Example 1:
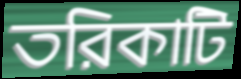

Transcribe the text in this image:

তরিকাটি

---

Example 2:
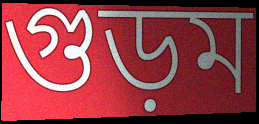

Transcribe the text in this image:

গুড়ম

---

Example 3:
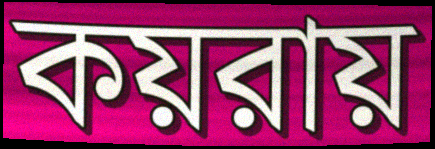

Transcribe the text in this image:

কয়রায়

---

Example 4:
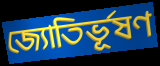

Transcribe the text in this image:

জ্যোতির্ভূষণ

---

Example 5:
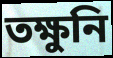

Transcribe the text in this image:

তক্ষুনি